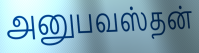
அனுபவஸ்தன்